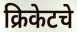
क्रिकेटचे